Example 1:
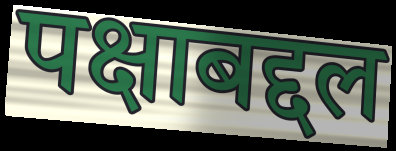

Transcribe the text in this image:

पक्षाबद्दल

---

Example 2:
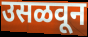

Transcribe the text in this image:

उसळवून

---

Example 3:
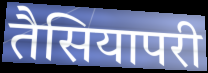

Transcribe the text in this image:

तैसियापरी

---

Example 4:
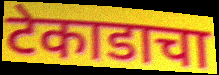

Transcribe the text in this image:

टेकाडाचा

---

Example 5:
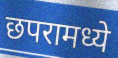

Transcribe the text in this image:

छपरामध्ये